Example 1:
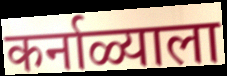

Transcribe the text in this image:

कर्नाळ्याला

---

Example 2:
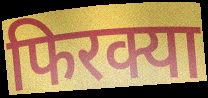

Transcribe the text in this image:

फिरक्या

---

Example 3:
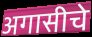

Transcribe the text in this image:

अगासीचे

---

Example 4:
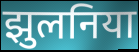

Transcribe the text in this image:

झुलनिया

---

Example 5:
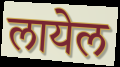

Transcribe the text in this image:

लायेल